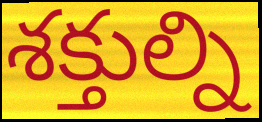
శక్తుల్ని